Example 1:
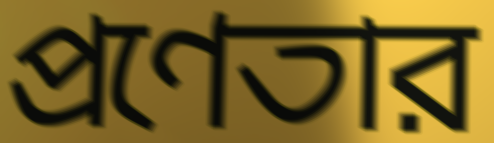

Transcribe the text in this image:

প্রণেতার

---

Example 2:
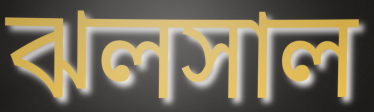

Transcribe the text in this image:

ঝলসাল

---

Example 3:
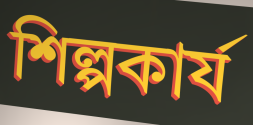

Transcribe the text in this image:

শিল্পকার্য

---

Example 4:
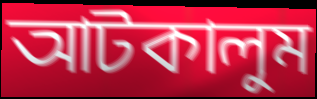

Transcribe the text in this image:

আটকালুম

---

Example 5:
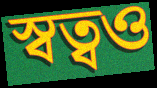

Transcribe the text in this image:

স্বত্বও